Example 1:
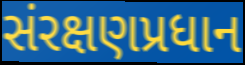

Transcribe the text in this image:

સંરક્ષણપ્રધાન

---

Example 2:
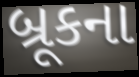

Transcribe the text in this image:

બ્રૂકના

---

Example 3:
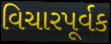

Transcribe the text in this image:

વિચારપૂર્વક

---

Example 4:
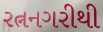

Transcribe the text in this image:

રત્નનગરીથી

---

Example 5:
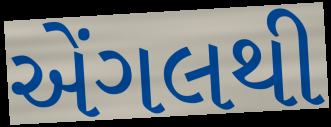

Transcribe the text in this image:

એંગલથી